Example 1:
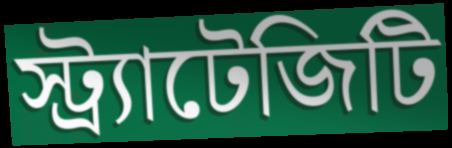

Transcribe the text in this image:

স্ট্র্যাটেজিটি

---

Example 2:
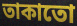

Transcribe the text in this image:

তাকাতো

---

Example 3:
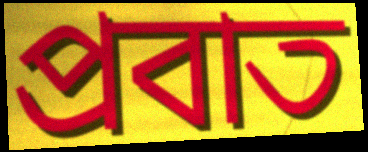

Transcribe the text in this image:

প্রবাত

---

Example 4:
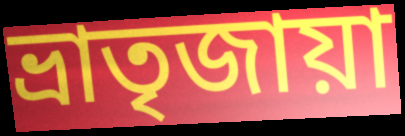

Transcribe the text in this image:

ভ্রাতৃজায়া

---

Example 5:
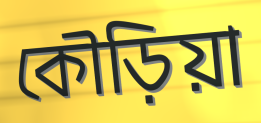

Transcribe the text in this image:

কৌড়িয়া